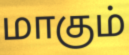
மாகும்